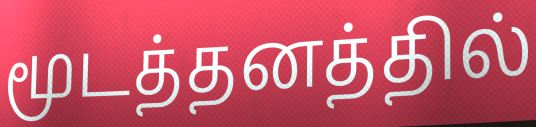
மூடத்தனத்தில்